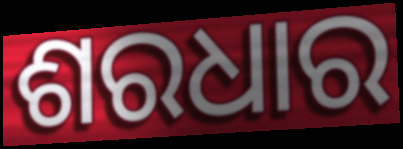
ଶରଧାର